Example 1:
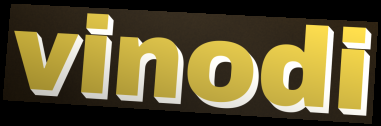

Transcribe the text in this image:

vinodi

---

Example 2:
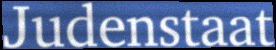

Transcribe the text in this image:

Judenstaat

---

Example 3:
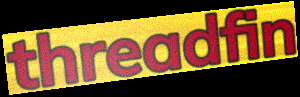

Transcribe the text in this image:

threadfin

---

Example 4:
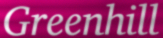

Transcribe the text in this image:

Greenhill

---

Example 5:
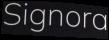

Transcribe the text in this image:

Signora